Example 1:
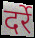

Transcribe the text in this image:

दर्रे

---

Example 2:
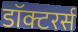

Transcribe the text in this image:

डॉक्टरर्स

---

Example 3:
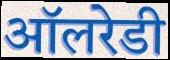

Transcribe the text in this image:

ऑलरेडी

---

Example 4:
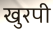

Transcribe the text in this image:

खुरपी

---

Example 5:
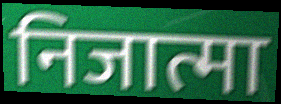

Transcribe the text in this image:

निजात्मा